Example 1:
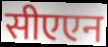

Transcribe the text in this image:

सीएएन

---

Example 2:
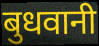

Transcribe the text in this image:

बुधवानी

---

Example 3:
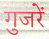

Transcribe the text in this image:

गुजरें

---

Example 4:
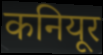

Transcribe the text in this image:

कनियूर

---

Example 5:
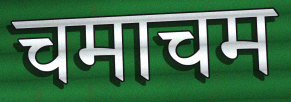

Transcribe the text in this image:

चमाचम